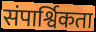
संपार्श्विकता